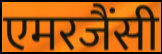
एमरजैंसी